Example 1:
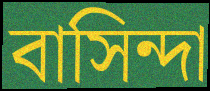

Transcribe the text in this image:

বাসিন্দা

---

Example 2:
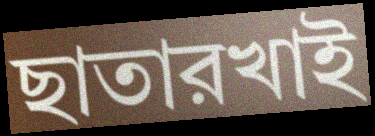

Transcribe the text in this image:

ছাতারখাই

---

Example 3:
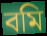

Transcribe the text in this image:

বমি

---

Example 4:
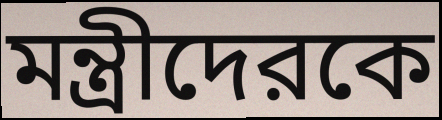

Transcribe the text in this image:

মন্ত্রীদেরকে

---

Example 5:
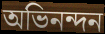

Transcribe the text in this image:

অভিনন্দন